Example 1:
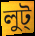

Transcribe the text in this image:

লুট্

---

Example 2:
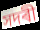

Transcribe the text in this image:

সদৰী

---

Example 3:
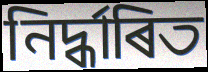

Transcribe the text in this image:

নিৰ্দ্ধাৰিত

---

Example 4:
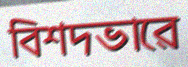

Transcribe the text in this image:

বিশদভাৱে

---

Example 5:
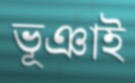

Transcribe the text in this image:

ভূঞাই